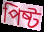
পিষ্ট